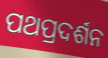
ପଥପ୍ରଦର୍ଶନ